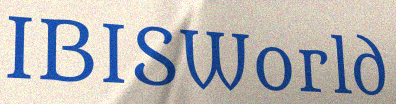
IBISWorld